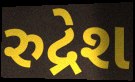
રુદ્રેશ